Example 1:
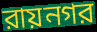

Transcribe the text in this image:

রায়নগর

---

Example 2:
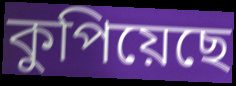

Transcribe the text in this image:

কুপিয়েছে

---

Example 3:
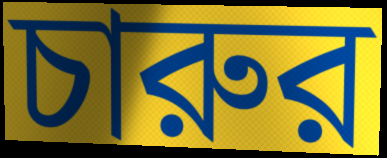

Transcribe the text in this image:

চারুর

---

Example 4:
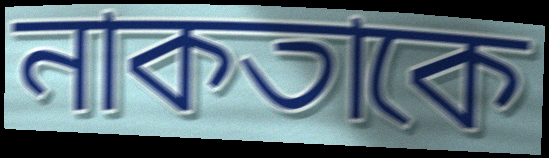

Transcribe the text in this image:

নাকতাকে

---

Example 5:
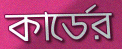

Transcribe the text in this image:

কার্ডের